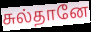
சுல்தானே